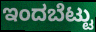
ಇಂದಬೆಟ್ಟು